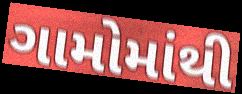
ગામોમાંથી